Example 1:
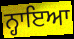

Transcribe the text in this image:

ਨ੍ਹ੍ਹਾਇਆ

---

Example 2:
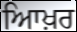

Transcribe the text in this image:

ਆਿਖ਼ਰ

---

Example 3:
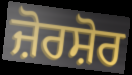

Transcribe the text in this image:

ਜ਼ੋਰਸ਼ੋਰ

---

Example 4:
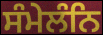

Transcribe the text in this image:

ਸੰਮੇਲੰਨਿ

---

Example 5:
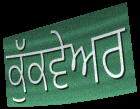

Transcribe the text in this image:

ਕੁੱਕਵੇਅਰ